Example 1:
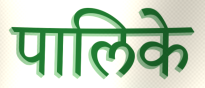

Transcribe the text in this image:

पालिके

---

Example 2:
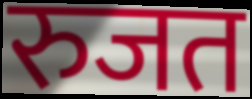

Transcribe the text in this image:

रुजत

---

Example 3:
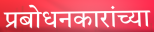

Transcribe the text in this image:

प्रबोधनकारांच्या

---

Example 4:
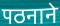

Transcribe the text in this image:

पठनाने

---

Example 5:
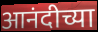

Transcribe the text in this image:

आनंदीच्या